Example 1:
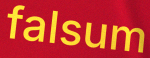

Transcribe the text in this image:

falsum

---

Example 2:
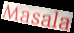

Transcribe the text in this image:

Masala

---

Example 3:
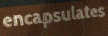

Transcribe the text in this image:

encapsulates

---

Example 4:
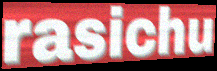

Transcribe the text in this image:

rasichu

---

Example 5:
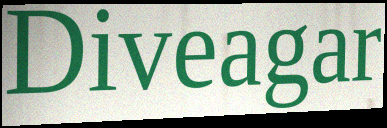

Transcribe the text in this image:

Diveagar